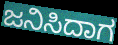
ಜನಿಸಿದಾಗ